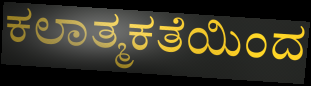
ಕಲಾತ್ಮಕತೆಯಿಂದ